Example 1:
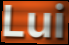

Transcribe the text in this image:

Lui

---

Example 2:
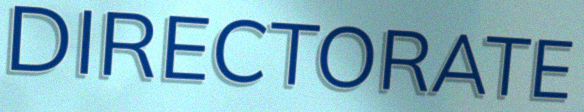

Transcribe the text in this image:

DIRECTORATE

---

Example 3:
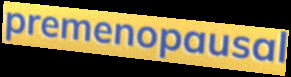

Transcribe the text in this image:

premenopausal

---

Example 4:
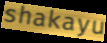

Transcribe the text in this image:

shakayu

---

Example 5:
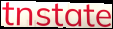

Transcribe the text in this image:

tnstate